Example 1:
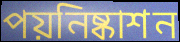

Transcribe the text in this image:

পয়নিষ্কাশন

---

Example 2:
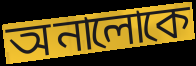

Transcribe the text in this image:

অনালোকে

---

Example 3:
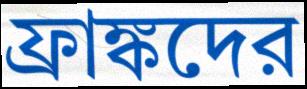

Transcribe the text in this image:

ফ্রাঙ্কদের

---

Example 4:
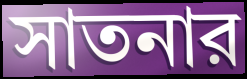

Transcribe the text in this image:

সাতনার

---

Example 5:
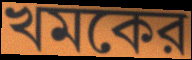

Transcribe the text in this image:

খমকের